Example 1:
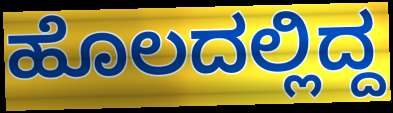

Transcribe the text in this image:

ಹೊಲದಲ್ಲಿದ್ದ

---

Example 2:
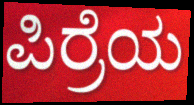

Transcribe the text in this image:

ಪಿರ್ರೆಯ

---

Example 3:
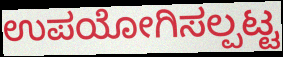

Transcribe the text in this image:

ಉಪಯೋಗಿಸಲ್ಪಟ್ಟ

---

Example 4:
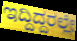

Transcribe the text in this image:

ಇದ್ದಿದ್ದರಲ್ಲೇ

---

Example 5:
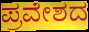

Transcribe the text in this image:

ಪ್ರವೇಶದ